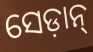
ସେଡ଼ାନ୍